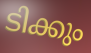
ടിക്കും